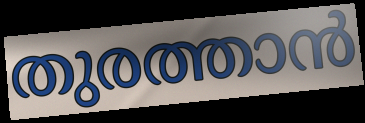
തുരത്താൻ